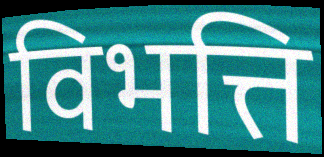
विभत्ति